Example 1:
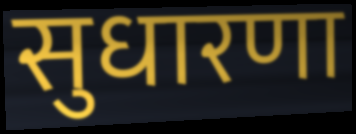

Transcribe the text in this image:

सुधारणा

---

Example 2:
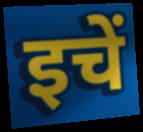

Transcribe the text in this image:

इचें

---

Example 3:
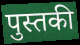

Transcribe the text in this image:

पुस्तकी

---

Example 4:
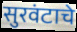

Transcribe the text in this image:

सुरवंटाचे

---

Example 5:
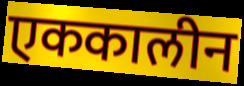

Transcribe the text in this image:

एककालीन